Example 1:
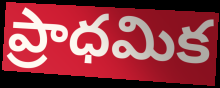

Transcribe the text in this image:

ప్రాధమిక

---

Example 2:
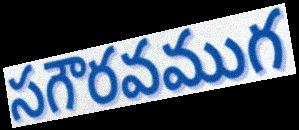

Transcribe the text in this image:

సగౌరవముగ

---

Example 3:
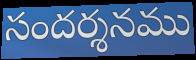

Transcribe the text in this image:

సందర్శనము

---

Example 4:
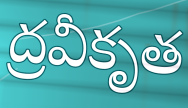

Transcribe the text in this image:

ద్రవీకృత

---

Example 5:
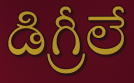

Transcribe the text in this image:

డిగ్రీలే